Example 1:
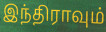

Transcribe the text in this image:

இந்திராவும்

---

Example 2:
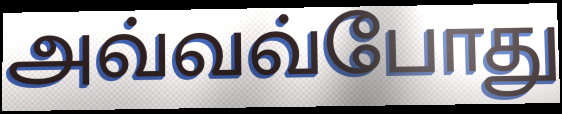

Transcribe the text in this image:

அவ்வவ்போது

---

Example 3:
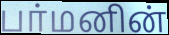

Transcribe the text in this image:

பர்மனின்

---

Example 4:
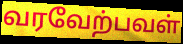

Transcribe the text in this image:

வரவேற்பவள்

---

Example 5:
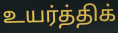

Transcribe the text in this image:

உயர்த்திக்